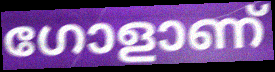
ഗോളാണ്